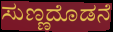
ಸುಣ್ಣದೊಡನೆ